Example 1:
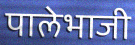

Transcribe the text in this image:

पालेभाजी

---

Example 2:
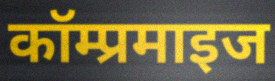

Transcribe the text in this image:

कॉम्प्रमाइज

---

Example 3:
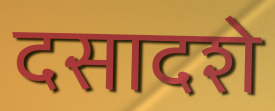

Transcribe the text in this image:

दसादशे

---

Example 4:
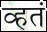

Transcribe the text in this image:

व्हतं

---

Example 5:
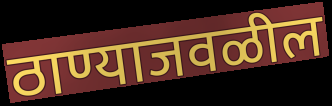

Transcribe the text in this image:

ठाण्याजवळील